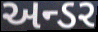
અન્ડર